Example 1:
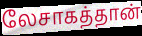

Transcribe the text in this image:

லேசாகத்தான்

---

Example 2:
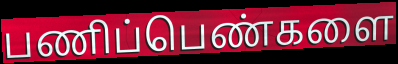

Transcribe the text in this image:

பணிப்பெண்களை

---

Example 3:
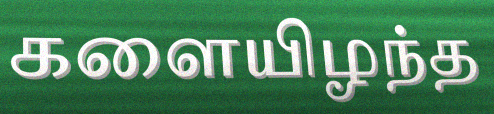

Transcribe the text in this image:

களையிழந்த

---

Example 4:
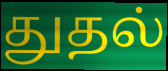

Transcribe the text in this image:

துதல்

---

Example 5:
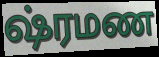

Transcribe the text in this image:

ஷ்ரமண